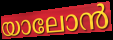
യാലോൻ